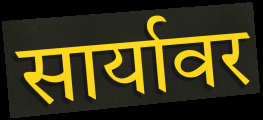
सार्यावर